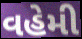
વહેમી